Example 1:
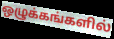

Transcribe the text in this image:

ஒழுக்கங்களில்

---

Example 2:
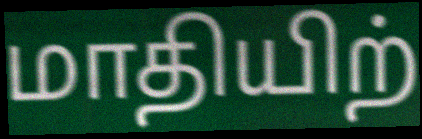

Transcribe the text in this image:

மாதியிற்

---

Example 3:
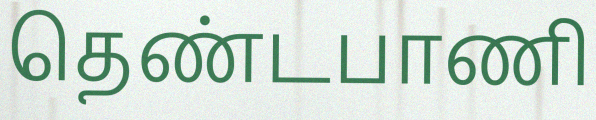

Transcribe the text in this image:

தெண்டபாணி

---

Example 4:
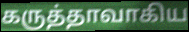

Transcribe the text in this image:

கருத்தாவாகிய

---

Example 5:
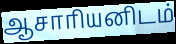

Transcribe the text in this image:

ஆசாரியனிடம்